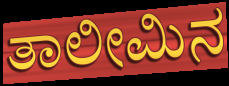
ತಾಲೀಮಿನ